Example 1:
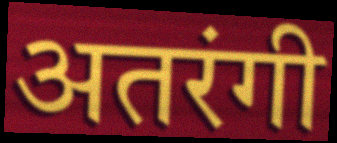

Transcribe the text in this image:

अतरंगी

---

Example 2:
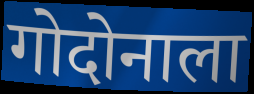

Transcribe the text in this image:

गोदोनाला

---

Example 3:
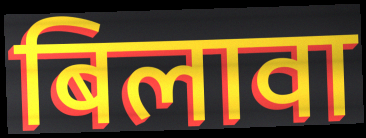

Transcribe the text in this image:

बिलावा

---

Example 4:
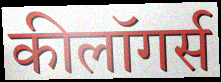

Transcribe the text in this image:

कीलॉगर्स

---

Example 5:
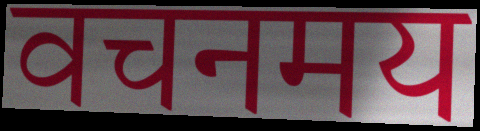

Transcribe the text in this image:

वचनमय